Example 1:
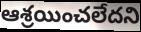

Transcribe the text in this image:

ఆశ్రయించలేదని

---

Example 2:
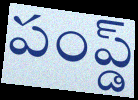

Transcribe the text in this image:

పంప్డ్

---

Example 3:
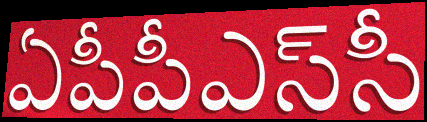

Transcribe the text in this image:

ఏపీపీఎస్‌సీ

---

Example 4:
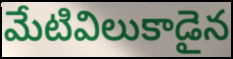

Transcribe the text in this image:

మేటివిలుకాడైన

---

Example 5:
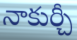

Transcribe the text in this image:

నాకుర్చీ